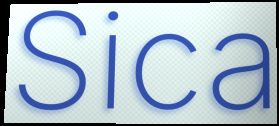
Sica